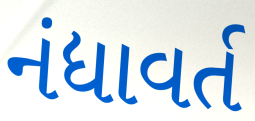
નંદ્યાવર્ત